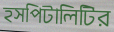
হসপিটালিটির